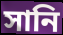
সানি